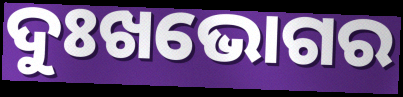
ଦୁଃଖଭୋଗର